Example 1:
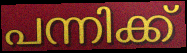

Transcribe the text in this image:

പന്നിക്ക്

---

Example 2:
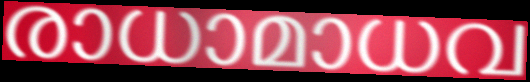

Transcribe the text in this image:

രാധാമാധവ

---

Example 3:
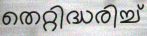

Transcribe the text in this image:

തെറ്റിദ്ധരിച്ച്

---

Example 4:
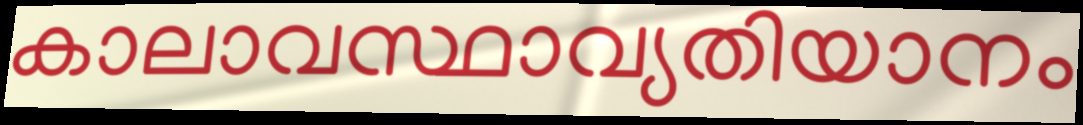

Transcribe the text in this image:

കാലാവസ്ഥാവ്യതിയാനം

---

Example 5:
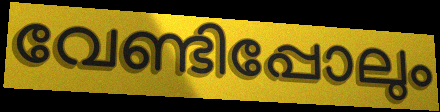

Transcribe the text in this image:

വേണ്ടിപ്പോലും